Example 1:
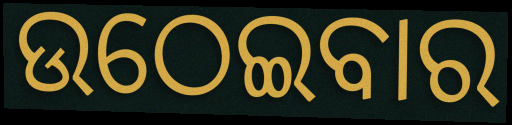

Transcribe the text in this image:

ଉଠେଇବାର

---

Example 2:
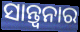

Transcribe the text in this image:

ସାନ୍ତ୍ବନାର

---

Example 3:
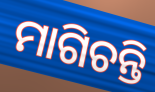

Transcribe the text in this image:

ମାଗିଚନ୍ତି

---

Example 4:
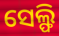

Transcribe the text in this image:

ସେଲ୍ଫି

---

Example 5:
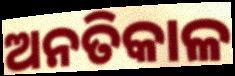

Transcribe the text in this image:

ଅନତିକାଳ